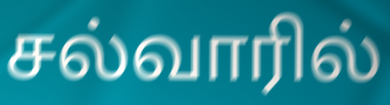
சல்வாரில்